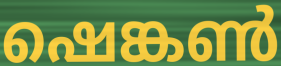
ഷെങ്കൺ